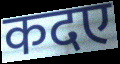
कदए